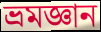
ভ্রমজ্ঞান